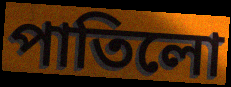
পাতিলো